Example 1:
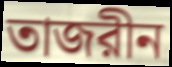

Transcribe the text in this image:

তাজরীন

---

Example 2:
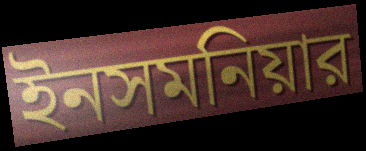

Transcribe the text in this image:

ইনসমনিয়ার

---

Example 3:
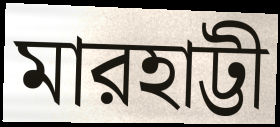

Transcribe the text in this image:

মারহাট্টী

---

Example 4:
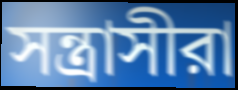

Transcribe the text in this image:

সন্ত্রাসীরা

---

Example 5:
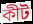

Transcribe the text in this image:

কীট